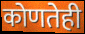
कोणतेही